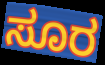
ಸೂರ